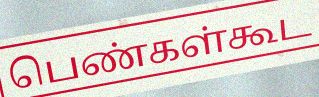
பெண்கள்கூட